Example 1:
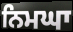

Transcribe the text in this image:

ਨਿਮਘਾ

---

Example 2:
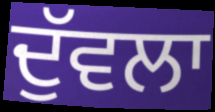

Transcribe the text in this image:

ਦੁੱਵਲਾ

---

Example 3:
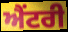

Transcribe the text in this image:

ਐਂਟਰੀ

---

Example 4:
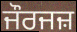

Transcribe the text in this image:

ਜੌਰਜਜ਼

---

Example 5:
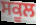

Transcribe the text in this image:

ਸਕੂਲ